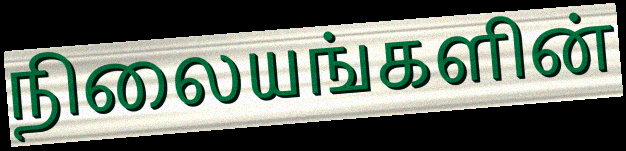
நிலையங்களின்